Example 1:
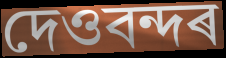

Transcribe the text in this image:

দেওবন্দৰ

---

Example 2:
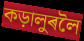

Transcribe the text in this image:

কড়ালুৰলৈ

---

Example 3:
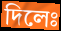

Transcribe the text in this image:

দিলেঃ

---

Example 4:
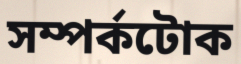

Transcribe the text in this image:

সম্পৰ্কটোক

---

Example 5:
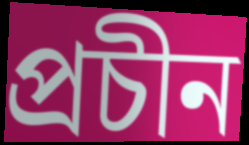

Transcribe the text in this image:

প্ৰচীন